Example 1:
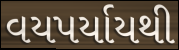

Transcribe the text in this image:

વયપર્યાયથી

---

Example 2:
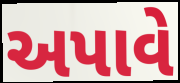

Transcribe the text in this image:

અપાવે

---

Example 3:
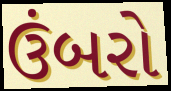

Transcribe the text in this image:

ઉંબરો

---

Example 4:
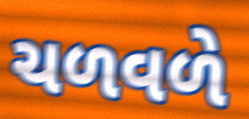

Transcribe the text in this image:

ચળવળે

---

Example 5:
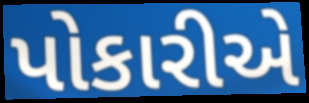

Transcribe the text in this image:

પોકારીએ